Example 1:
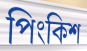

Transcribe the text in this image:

পিংকিশ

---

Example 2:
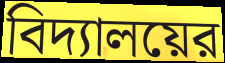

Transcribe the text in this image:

বিদ্যালয়ের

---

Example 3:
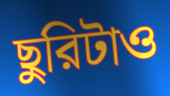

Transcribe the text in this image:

ছুরিটাও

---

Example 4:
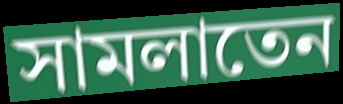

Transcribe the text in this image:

সামলাতেন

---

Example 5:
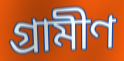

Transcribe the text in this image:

গ্রামীণ